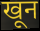
खून